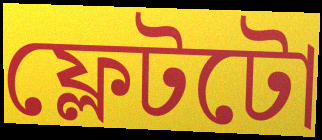
ফ্লেটটো